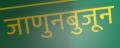
जाणुनबुजून